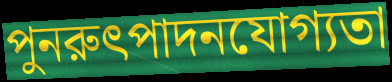
পুনরুৎপাদনযোগ্যতা